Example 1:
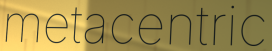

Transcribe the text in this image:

metacentric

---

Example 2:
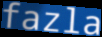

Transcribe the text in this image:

fazla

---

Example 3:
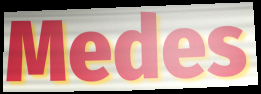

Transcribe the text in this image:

Medes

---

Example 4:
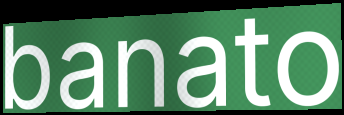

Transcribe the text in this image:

banato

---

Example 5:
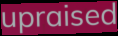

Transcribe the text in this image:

upraised